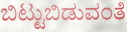
ಬಿಟ್ಟುಬಿಡುವಂತೆ